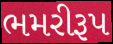
ભમરીરૂપ